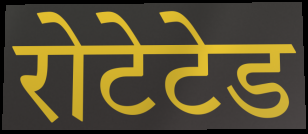
रोटेटेड